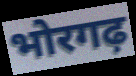
भोरगढ़